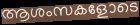
ആശംസകളോടെ